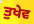
ਤੁਖੇਵ